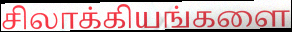
சிலாக்கியங்களை